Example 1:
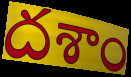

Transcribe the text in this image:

దశాం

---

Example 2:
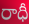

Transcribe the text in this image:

రాధీ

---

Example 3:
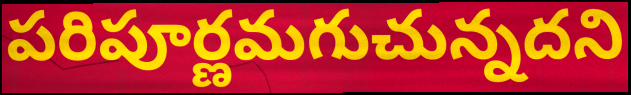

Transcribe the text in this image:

పరిపూర్ణమగుచున్నదని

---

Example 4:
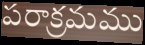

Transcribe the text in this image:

పరాక్రమము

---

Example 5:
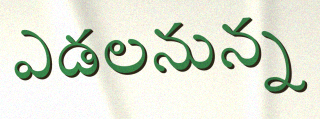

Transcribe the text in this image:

ఎడలనున్న